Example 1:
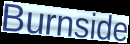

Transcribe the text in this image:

Burnside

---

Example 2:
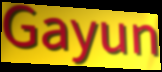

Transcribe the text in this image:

Gayun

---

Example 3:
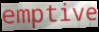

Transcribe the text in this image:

emptive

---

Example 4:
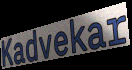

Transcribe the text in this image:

Kadvekar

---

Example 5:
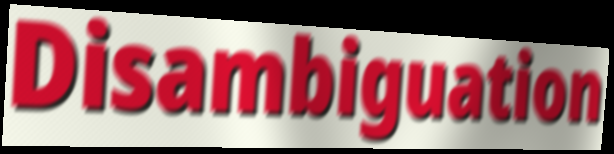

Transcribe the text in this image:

Disambiguation